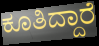
ಕೂತಿದ್ದಾರೆ